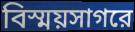
বিস্ময়সাগরে